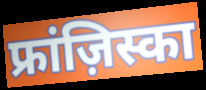
फ्रांज़िस्का